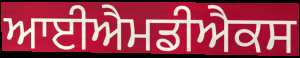
ਆਈਐਮਡੀਐਕਸ